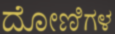
ದೋಣಿಗಳ